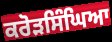
ਕਰੋੜਸਿੰਘਿਆ